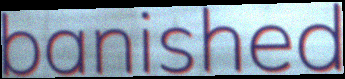
banished